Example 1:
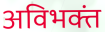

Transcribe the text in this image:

अविभक्तं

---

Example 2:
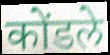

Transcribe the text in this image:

कोंडले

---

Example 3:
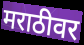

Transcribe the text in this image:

मराठीवर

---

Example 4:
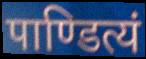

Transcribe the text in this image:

पाण्डित्यं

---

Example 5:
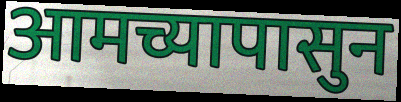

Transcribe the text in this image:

आमच्यापासुन